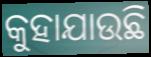
କୁହାଯାଉଛି